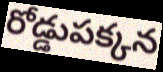
రోడ్డుపక్కన